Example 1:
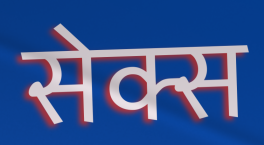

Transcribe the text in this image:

सेक्स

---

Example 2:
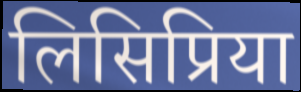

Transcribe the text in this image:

लिसिप्रिया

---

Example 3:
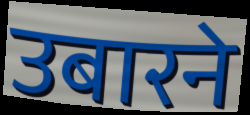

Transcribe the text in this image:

उबारने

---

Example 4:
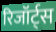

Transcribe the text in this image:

रिजॉर्ट्स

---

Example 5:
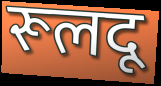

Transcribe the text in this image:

रूलदू